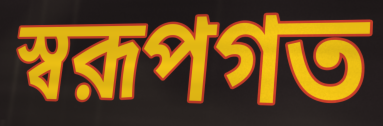
স্বরূপগত